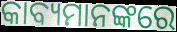
କାବ୍ୟମାନଙ୍କରେ